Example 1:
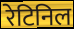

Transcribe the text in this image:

रेटिनिल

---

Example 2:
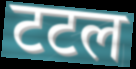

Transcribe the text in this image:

टटल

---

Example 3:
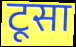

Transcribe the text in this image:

टूसा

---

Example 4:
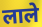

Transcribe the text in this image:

लाले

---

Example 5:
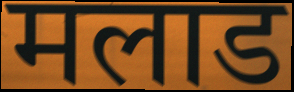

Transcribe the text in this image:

मलाड